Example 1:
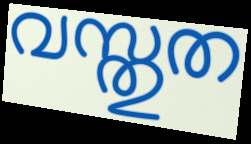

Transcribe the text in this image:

വസ്തുത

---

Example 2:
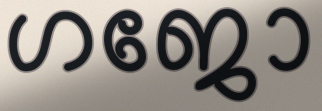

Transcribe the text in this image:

ഗജോ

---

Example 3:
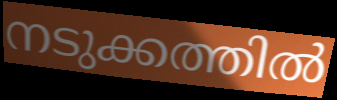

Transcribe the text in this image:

നടുക്കത്തിൽ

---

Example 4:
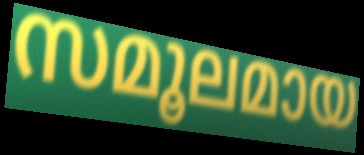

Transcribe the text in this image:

സമൂലമായ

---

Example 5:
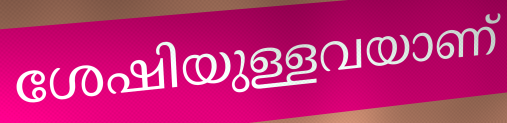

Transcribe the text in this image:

ശേഷിയുള്ളവയാണ്